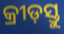
କ୍ରୀଡ଼ସ୍ତୁ